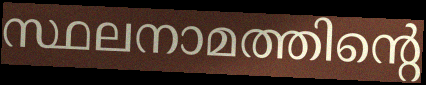
സ്ഥലനാമത്തിന്റെ